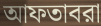
আফতাবরা